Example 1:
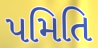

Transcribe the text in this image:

પમિતિ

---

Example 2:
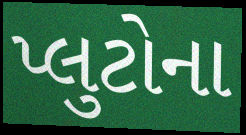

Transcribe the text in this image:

પ્લુટોના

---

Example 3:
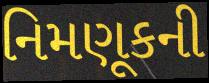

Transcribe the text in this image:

નિમણૂકની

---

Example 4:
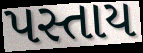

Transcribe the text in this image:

પસ્તાય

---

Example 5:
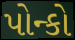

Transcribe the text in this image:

પોન્કો